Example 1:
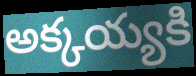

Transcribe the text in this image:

అక్కయ్యకి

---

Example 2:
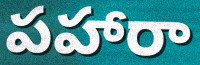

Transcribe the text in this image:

పహారా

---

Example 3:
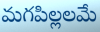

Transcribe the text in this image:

మగపిల్లలమే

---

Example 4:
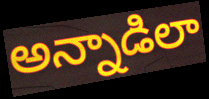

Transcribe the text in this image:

అన్నాడిలా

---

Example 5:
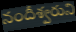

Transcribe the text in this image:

నందీశ్వరుని